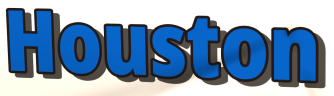
Houston